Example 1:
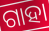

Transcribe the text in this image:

ଗାହା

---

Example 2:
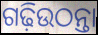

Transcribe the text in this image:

ଗଢ଼ିଉଠନ୍ତା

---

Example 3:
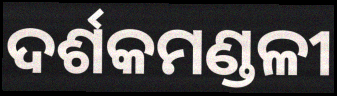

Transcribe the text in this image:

ଦର୍ଶକମଣ୍ଡଳୀ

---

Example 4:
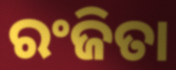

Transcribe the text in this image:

ରଂଜିତା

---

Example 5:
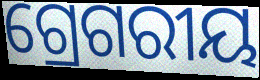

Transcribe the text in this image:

ଗ୍ରେଗରୀୟ